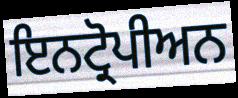
ਇਨਟ੍ਰੋਪੀਅਨ